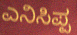
ಎನಿಸಿಪ್ಪ